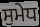
ਸੁਮੇਧ